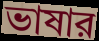
ভাষার